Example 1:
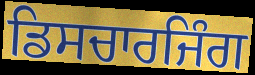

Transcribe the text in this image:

ਡਿਸਚਾਰਜਿੰਗ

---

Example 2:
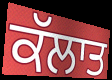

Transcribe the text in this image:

ਕੱਲਾਤ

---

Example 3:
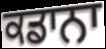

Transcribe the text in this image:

ਕਡਾਨਾ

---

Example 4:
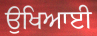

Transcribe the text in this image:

ਉਖਿਆਈ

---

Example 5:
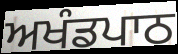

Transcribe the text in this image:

ਅਖੰਡਪਾਠ